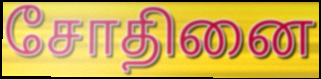
சோதினை